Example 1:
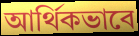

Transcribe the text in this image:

আৰ্থিকভাবে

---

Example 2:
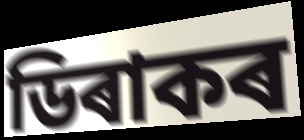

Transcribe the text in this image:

ডিৰাকৰ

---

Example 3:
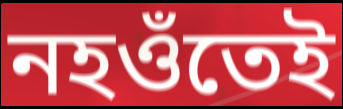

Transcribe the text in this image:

নহওঁতেই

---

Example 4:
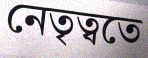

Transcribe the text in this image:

নেতৃত্বতে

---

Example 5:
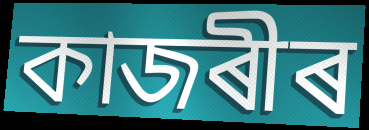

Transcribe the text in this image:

কাজৰীৰ